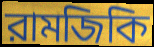
রামজিকি